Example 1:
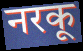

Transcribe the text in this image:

नरकू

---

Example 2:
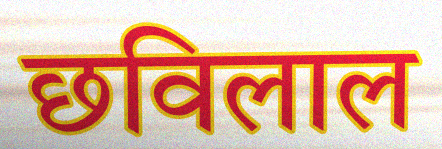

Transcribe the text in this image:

छविलाल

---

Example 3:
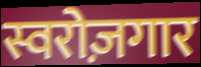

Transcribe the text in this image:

स्वरोज़गार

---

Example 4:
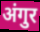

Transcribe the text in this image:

अंगुर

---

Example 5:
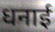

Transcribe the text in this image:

धनाई